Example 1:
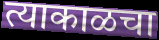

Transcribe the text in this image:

त्याकाळचा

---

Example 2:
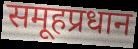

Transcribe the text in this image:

समूहप्रधान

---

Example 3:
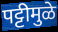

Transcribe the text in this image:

पट्टीमुळे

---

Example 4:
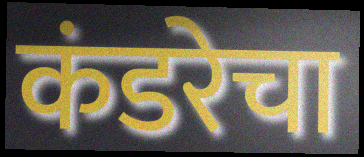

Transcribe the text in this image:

कंडरेचा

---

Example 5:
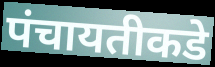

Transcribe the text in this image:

पंचायतीकडे